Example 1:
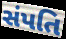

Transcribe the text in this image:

સંપતિ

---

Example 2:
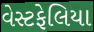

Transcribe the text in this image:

વેસ્ટફેલિયા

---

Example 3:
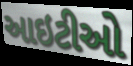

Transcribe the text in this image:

આઇટીઓ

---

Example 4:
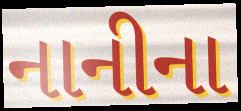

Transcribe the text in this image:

નાનીના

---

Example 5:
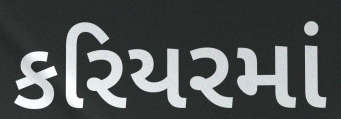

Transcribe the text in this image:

કરિયરમાં